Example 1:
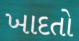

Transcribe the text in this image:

ખાદતો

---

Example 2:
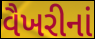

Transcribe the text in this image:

વૈખરીનાં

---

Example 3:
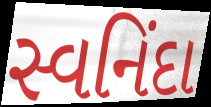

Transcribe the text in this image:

સ્વનિંદા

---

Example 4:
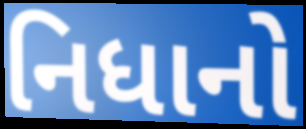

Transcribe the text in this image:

નિધાનો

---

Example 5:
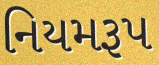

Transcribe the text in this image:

નિયમરૂપ